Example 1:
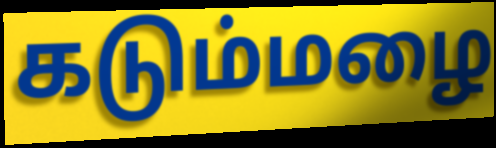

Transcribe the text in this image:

கடும்மழை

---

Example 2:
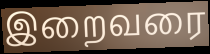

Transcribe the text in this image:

இறைவரை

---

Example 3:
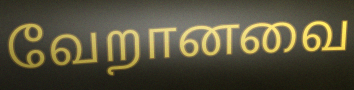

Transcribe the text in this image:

வேறானவை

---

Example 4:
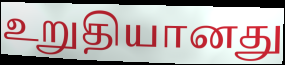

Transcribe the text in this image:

உறுதியானது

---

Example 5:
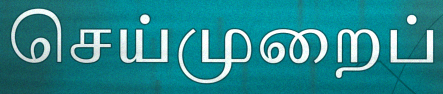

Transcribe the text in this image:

செய்முறைப்